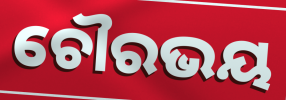
ଚୌରଭୟ